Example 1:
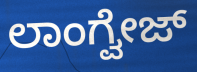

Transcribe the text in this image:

ಲಾಂಗ್ವೇಜ್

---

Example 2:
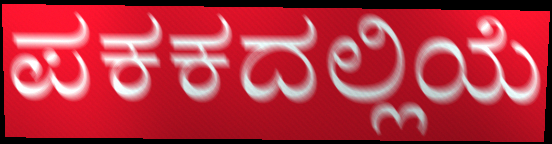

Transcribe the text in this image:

ಪಕಕದಲ್ಲಿಯೆ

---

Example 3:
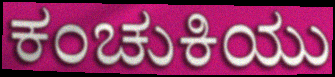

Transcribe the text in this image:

ಕಂಚುಕಿಯು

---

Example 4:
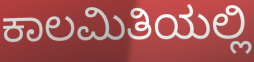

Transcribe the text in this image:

ಕಾಲಮಿತಿಯಲ್ಲಿ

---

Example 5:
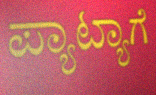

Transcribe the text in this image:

ಪ್ಯಾಟ್ಯಾಗೆ